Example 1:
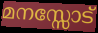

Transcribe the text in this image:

മനസ്സോട്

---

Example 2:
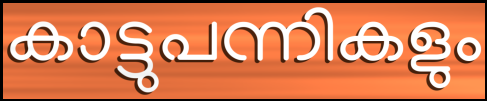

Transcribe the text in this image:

കാട്ടുപന്നികളും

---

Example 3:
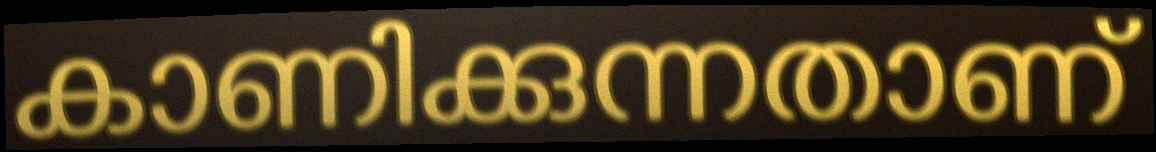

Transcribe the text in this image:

കാണിക്കുന്നതാണ്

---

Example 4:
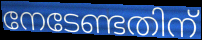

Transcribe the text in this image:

നേടേണ്ടതിന്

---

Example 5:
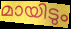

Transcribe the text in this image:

മായിടും